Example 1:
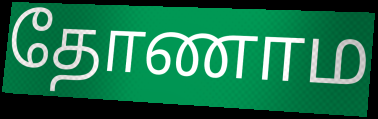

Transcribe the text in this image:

தோணாம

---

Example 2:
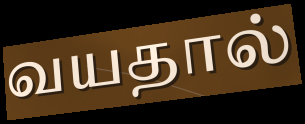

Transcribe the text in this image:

வயதால்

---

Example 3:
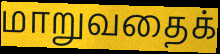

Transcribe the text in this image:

மாறுவதைக்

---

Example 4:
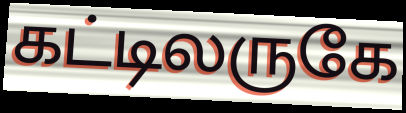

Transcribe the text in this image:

கட்டிலருகே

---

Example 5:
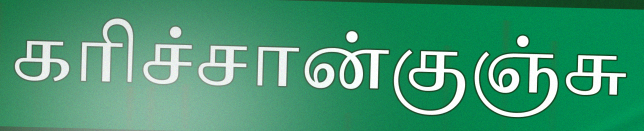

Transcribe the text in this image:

கரிச்சான்குஞ்சு